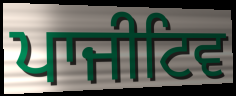
ਪਾਜੀਟਿਵ